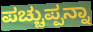
ಪಚ್ಚುಪ್ಪನ್ನಾ